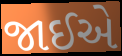
જાઈએ